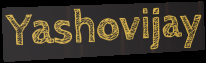
Yashovijay